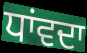
ਧਾਂਵਦਾ